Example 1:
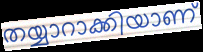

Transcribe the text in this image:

തയ്യാറാക്കിയാണ്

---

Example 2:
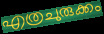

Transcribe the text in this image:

എത്രചുരുക്കം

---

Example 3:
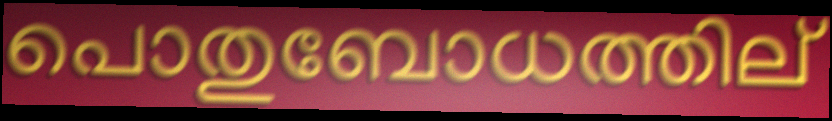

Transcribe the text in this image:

പൊതുബോധത്തില്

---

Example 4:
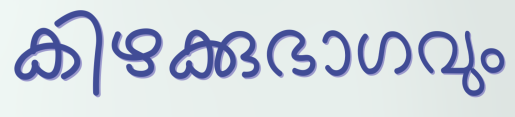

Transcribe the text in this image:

കിഴക്കുഭാഗവും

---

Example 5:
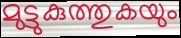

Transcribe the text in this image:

മുട്ടുകുത്തുകയും